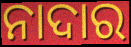
ନାଦାର